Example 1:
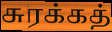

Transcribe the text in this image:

சுரக்கத்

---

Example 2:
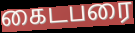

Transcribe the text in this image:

கைடபரை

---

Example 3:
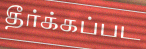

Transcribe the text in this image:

தீர்க்கப்பட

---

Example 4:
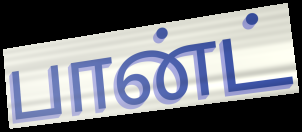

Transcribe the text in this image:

பான்ட்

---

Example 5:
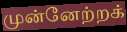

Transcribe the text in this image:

முன்னேற்றக்